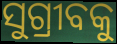
ସୁଗ୍ରୀବକୁ